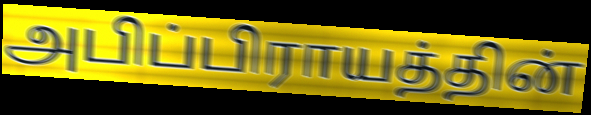
அபிப்பிராயத்தின்